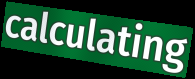
calculating